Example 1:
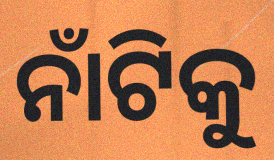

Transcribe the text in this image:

ନାଁଟିକୁ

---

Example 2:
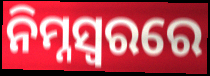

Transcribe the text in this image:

ନିମ୍ନସ୍ୱରରେ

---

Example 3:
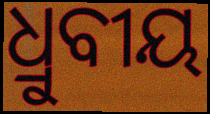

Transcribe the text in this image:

ଧ୍ରୁବୀୟ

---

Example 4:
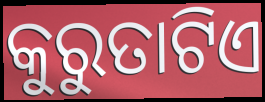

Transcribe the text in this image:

କୁରୁତାଟିଏ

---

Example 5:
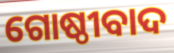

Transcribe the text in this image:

ଗୋଷ୍ଠୀବାଦ